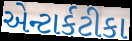
એન્ટાર્કટીકા